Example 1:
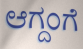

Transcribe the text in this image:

ಆಗ್ದಂಗೆ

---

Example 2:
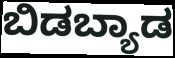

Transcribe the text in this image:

ಬಿಡಬ್ಯಾಡ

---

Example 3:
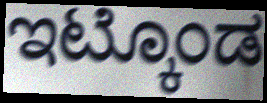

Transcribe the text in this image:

ಇಟ್ಕೊಂಡ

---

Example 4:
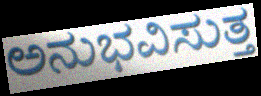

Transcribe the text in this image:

ಅನುಭವಿಸುತ್ತ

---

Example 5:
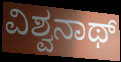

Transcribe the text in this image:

ವಿಶ್ವನಾಥ್